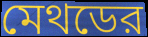
মেথডের